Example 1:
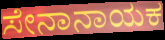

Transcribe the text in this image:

ಸೇನಾನಾಯಕ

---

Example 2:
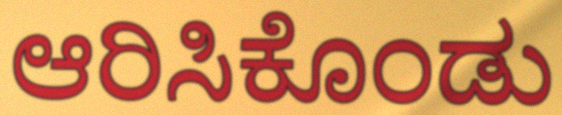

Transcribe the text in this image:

ಆರಿಸಿಕೊಂಡು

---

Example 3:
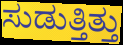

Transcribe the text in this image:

ಸುಡುತ್ತಿತ್ತು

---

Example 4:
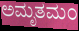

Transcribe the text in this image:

ಅಮೃತಮಂ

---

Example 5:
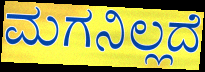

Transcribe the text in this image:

ಮಗನಿಲ್ಲದೆ